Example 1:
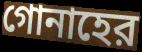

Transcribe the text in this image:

গোনাহের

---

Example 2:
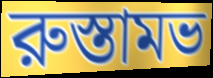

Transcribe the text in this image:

রুস্তামভ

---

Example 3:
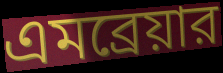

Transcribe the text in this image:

এমব্রেয়ার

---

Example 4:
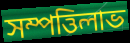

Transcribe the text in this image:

সম্পত্তিলাভ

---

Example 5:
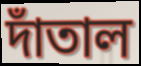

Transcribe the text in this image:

দাঁতাল